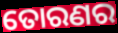
ତୋରଣର